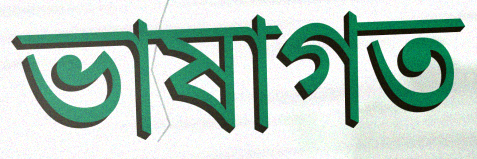
ভাষাগত